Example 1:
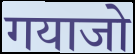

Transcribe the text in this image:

गयाजो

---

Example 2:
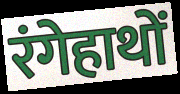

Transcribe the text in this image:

रंगेहाथों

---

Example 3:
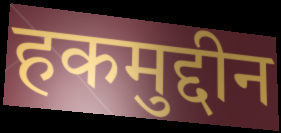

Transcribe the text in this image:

हकमुद्दीन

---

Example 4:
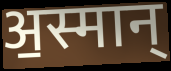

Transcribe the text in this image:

अ॒स्मान्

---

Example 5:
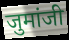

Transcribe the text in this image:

जुमांजी